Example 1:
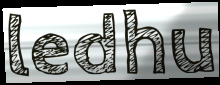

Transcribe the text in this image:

ledhu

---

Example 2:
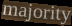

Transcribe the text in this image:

majority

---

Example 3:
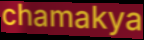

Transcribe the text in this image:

chamakya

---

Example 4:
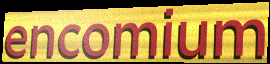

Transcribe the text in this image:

encomium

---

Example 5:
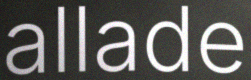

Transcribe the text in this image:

allade